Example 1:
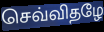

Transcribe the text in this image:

செவ்விதழே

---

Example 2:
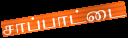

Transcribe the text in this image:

சாப்பாட்டை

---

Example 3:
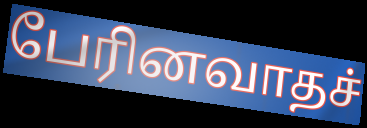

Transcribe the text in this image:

பேரினவாதச்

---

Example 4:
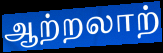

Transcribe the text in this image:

ஆற்றலாற்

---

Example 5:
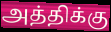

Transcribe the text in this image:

அத்திக்கு